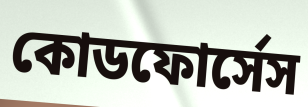
কোডফোর্সেস